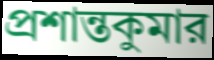
প্রশান্তকুমার